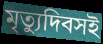
মৃত্যুদিবসই